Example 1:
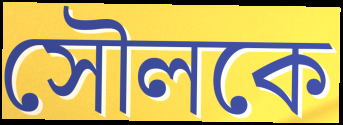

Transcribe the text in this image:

সৌলকে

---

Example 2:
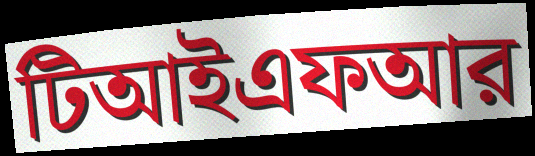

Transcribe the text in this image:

টিআইএফআর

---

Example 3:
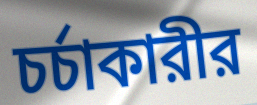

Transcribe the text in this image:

চর্চাকারীর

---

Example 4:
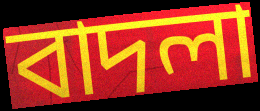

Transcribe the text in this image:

বাদলা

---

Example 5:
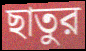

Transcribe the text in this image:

ছাতুর